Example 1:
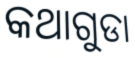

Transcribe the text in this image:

କଥାଗୁଡା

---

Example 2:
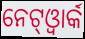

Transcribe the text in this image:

ନେଟ୍ଓ୍ବାର୍କ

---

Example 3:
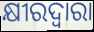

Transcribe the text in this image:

କ୍ଷୀରଦ୍ଵାରା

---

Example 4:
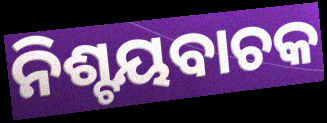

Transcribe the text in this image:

ନିଶ୍ଟୟବାଚକ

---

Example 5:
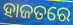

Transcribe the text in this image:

ହାଜତରେ